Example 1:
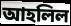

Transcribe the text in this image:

আহলিল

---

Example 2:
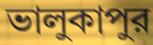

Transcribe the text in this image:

ভালুকাপুর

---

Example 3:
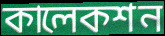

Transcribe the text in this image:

কালেকশন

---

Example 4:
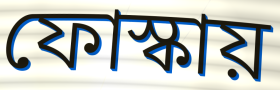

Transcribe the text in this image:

ফোস্কায়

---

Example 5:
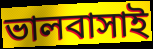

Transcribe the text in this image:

ভালবাসাই